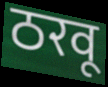
ठरवू